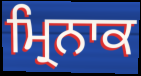
ਮ੍ਰਿਨਾਕ